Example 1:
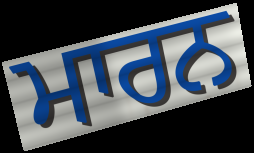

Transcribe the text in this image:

ਮਾਰਨ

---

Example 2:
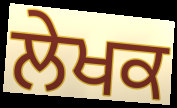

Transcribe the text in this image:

ਲੇਖਕ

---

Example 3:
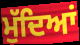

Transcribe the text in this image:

ਮੁੱਦਿਆਂ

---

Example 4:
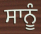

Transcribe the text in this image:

ਸਾਨੂੰ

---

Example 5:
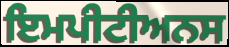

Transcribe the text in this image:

ਇਮਪੀਟੀਅਨਸ